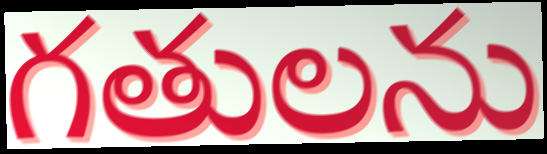
గతులను